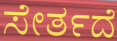
ಸೇರ್ತದೆ